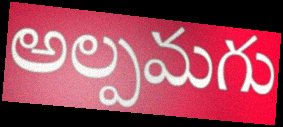
అల్పమగు